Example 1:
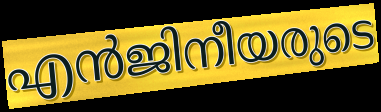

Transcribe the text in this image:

എൻജിനീയരുടെ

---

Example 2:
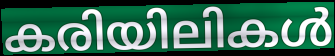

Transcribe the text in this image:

കരിയിലികൾ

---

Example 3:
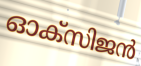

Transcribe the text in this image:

ഓക്സിജൻ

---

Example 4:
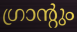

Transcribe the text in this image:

ഗ്രാന്റും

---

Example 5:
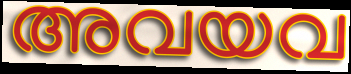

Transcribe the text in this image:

അവയവ